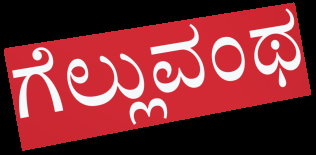
ಗೆಲ್ಲುವಂಥ